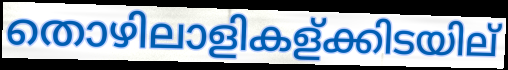
തൊഴിലാളികള്ക്കിടയില്